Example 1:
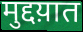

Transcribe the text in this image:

मुद्दय़ात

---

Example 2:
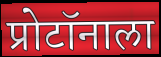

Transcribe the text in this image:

प्रोटॉनाला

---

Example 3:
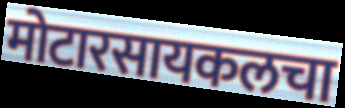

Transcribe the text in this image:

मोटारसायकलचा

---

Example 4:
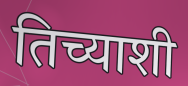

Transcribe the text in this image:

तिच्याशी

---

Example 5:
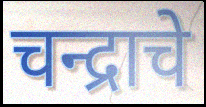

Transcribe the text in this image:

चन्द्राचे